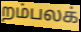
றம்பலக்